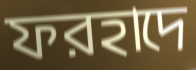
ফরহাদে